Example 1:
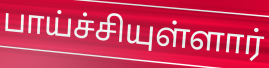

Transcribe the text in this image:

பாய்ச்சியுள்ளார்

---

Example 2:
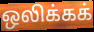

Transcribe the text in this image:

ஒலிக்கக்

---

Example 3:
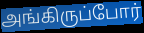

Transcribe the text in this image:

அங்கிருப்போர்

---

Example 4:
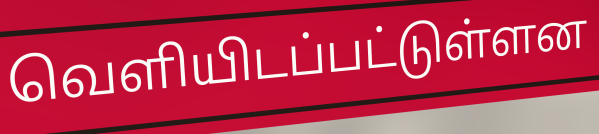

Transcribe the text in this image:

வெளியிடப்பட்டுள்ளன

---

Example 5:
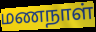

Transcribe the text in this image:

மணநாள்